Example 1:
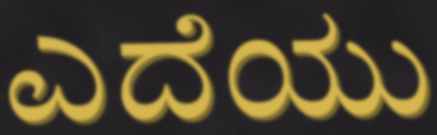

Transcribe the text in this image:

ಎದೆಯು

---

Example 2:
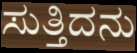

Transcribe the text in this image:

ಸುತ್ತಿದನು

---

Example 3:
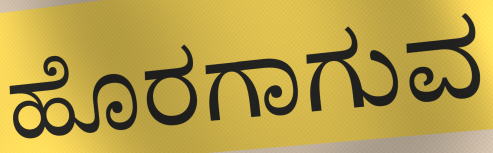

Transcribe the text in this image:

ಹೊರಗಾಗುವ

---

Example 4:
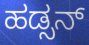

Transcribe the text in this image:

ಹಡ್ಸನ್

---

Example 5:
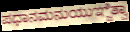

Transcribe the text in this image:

ಪಧಾನಮನುಯುಞ್ಜಿತ್ವಾ